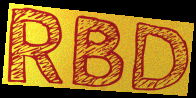
RBD